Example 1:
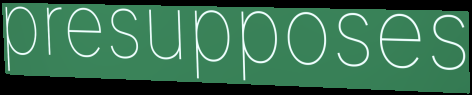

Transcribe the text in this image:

presupposes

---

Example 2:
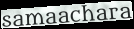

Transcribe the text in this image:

samaachara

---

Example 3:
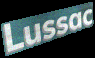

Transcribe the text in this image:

Lussac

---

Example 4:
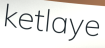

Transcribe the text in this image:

ketlaye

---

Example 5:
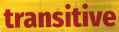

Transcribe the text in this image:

transitive